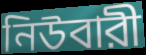
নিউবারী